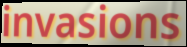
invasions